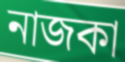
নাজকা